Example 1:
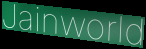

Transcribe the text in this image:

Jainworld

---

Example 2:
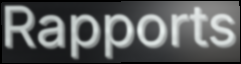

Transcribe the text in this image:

Rapports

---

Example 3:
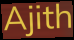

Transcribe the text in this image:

Ajith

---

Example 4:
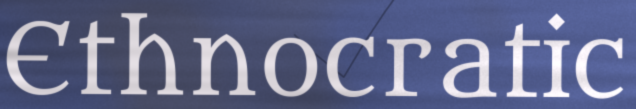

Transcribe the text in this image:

Ethnocratic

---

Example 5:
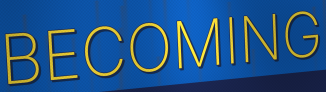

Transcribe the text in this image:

BECOMING